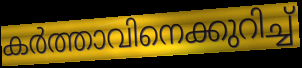
കർത്താവിനെക്കുറിച്ച്